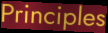
Principles